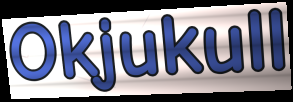
Okjukull